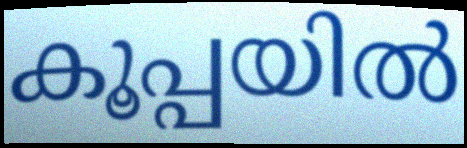
കൂപ്പയിൽ